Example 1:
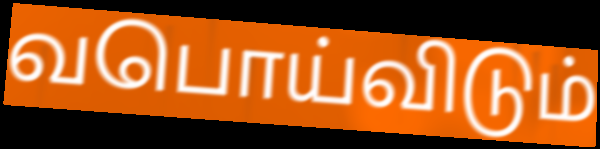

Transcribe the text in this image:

வபொய்விடும்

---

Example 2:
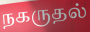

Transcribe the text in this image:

நகருதல்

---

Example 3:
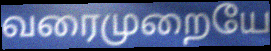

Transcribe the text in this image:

வரைமுறையே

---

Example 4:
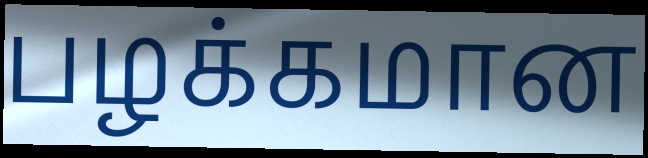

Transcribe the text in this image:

பழக்கமான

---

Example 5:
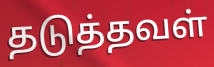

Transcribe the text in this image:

தடுத்தவள்